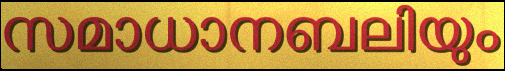
സമാധാനബലിയും